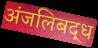
अंजलिबद्ध